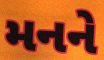
મનને